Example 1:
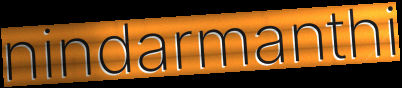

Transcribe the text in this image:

nindarmanthi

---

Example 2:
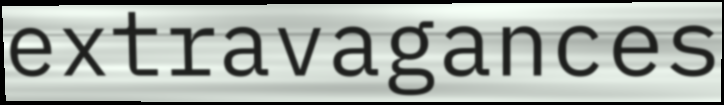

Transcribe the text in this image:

extravagances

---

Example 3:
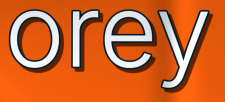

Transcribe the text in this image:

orey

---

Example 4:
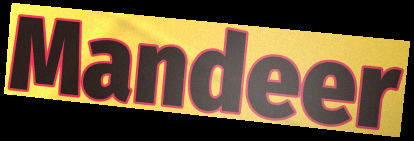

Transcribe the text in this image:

Mandeer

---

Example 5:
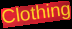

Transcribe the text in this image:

Clothing